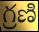
గ్రణి